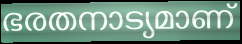
ഭരതനാട്യമാണ്